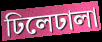
ঢিলেঢালা